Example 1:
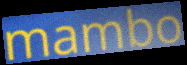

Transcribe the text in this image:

mambo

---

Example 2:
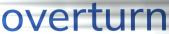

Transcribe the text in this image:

overturn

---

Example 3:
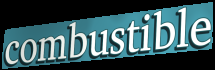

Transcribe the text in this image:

combustible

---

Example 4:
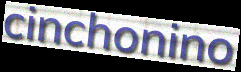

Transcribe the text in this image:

cinchonino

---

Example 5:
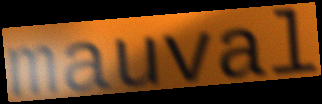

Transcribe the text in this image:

mauval